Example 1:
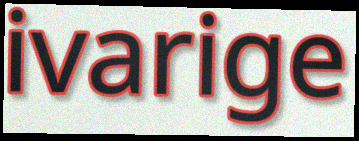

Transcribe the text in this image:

ivarige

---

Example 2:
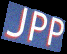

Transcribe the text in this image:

JPP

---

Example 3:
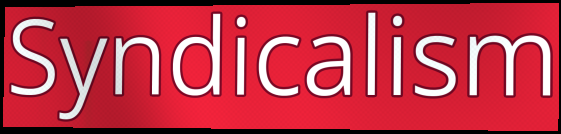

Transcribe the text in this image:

Syndicalism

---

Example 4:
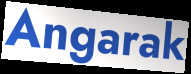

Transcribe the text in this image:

Angarak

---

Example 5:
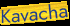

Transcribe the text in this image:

Kavacha